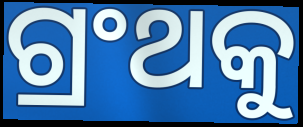
ଗ୍ରଂଥକୁ